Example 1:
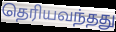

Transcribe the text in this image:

தெரியவந்தது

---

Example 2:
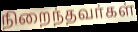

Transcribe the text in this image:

நிறைந்தவர்கள்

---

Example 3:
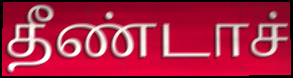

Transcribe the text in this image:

தீண்டாச்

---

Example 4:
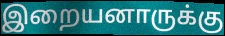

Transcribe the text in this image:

இறையனாருக்கு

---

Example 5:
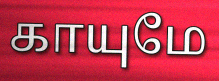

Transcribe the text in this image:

காயுமே